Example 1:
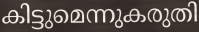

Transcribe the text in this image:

കിട്ടുമെന്നുകരുതി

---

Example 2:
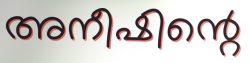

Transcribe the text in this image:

അനീഷിന്റെ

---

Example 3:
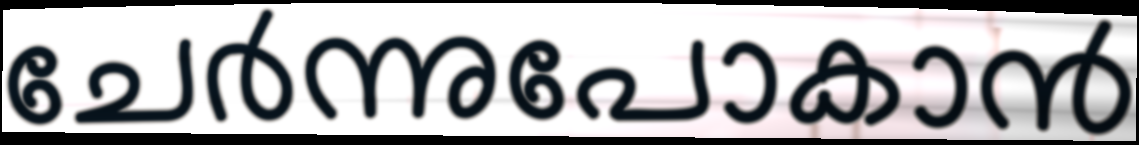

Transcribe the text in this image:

ചേർന്നുപോകാൻ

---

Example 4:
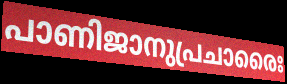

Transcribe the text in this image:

പാണിജാനുപ്രചാരൈഃ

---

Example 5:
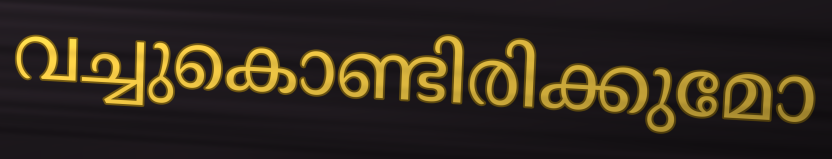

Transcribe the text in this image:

വച്ചുകൊണ്ടിരിക്കുമോ